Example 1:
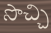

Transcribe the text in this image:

సొచ్చి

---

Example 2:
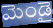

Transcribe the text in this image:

మెండై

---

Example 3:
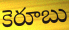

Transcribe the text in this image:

కెరూబు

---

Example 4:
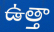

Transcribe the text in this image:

ఉత్తా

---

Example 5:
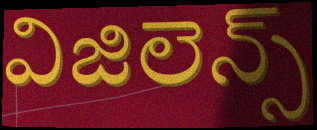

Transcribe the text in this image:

విజిలెన్స్